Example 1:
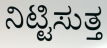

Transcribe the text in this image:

ನಿಟ್ಟಿಸುತ್ತ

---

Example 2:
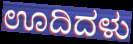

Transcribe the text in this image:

ಊದಿದಳು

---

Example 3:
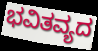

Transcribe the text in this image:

ಭವಿತವ್ಯದ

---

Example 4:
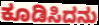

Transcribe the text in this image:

ಕೂಡಿಸಿದನು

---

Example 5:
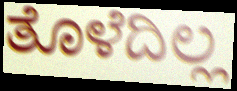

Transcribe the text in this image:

ತೊಳೆದಿಲ್ಲ